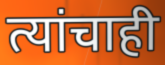
त्यांचाही